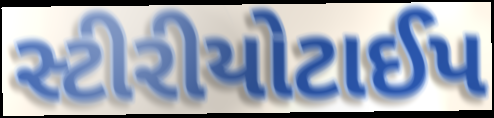
સ્ટીરીયોટાઈપ